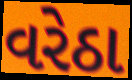
વરેઠા